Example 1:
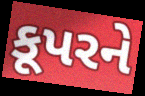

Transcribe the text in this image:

કૂપરને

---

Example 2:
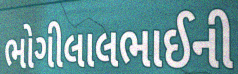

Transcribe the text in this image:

ભોગીલાલભાઈની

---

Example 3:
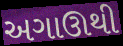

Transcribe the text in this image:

અગાઊથી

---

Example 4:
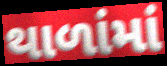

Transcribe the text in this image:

થાળાંમાં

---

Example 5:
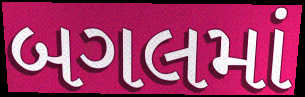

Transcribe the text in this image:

બગલમાં